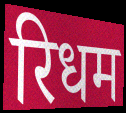
रिधम